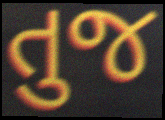
તુજ